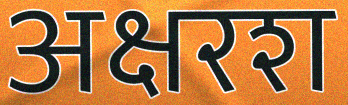
अक्षरश